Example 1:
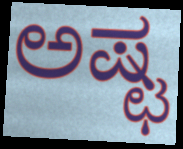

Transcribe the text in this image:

ಅಷ್ಟ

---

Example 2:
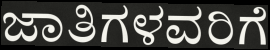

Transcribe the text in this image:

ಜಾತಿಗಳವರಿಗೆ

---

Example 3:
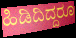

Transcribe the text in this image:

ಹಿಡಿದಿದ್ದರೂ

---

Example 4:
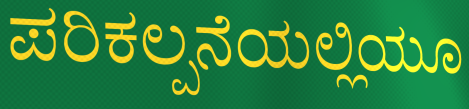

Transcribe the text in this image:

ಪರಿಕಲ್ಪನೆಯಲ್ಲಿಯೂ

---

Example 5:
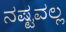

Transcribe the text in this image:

ನಷ್ಟವಲ್ಲ